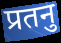
प्रतनु